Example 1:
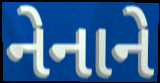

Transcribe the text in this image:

નેનાને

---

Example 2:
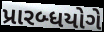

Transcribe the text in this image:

પ્રારબ્ધયોગે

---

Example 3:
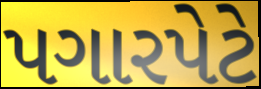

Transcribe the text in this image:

પગારપેટે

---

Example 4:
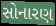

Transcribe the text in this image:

સોનારણ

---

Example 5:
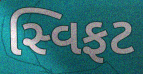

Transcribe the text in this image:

સ્વિફટ